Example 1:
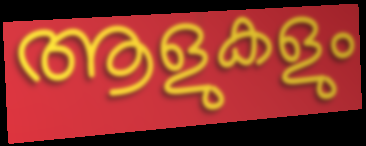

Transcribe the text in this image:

ആളുകളും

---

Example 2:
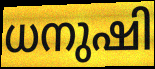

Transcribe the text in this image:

ധനുഷി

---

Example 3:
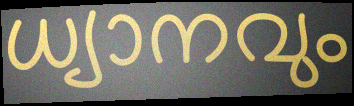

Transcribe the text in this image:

ധ്യാനവും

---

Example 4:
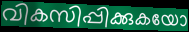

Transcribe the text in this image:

വികസിപ്പിക്കുകയോ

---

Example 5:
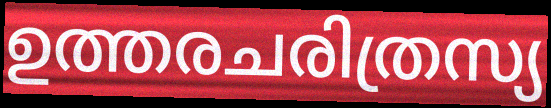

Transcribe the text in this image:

ഉത്തരചരിത്രസ്യ